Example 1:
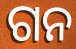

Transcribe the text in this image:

ଗନ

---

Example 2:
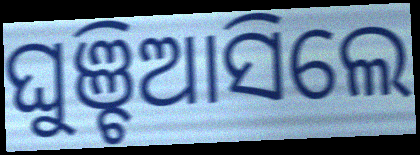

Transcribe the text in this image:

ଘୁଞ୍ଚିଆସିଲେ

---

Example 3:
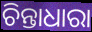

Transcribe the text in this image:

ଚିନ୍ତାଧାରା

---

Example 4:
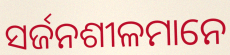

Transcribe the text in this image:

ସର୍ଜନଶୀଳମାନେ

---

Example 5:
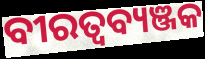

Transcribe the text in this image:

ବୀରତ୍ବବ୍ୟଞ୍ଜକ